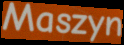
Maszyn